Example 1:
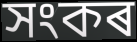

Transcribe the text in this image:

সংকৰ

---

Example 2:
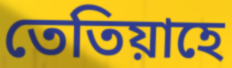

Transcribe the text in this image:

তেতিয়াহে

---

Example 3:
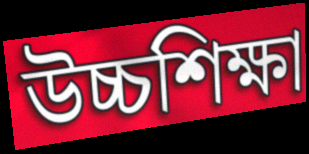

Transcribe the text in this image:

উচ্চশিক্ষা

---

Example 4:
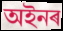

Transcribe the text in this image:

অইনৰ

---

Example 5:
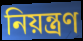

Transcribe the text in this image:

নিয়ন্ত্ৰণ